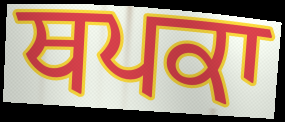
ਥਪਕਾ